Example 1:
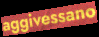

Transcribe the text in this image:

aggivessano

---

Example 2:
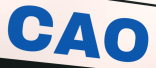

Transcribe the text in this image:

CAO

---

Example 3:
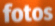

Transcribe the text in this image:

fotos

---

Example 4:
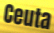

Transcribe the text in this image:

Ceuta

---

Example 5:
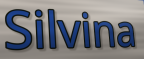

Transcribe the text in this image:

Silvina